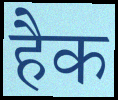
हैक